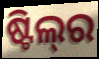
ଷ୍ଟିଲ୍‌ର